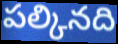
పల్కినది